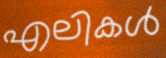
എലികൾ